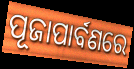
ପୂଜାପାର୍ବଣରେ